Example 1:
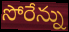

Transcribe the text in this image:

సోరేన్ను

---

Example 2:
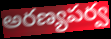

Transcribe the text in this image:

అరణ్యపర్వ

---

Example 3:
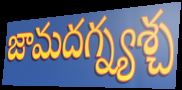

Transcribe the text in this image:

జామదగ్న్యశ్చ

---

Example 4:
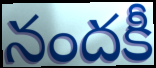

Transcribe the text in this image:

నందకీ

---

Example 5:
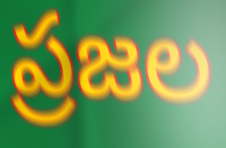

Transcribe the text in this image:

ప్రజల